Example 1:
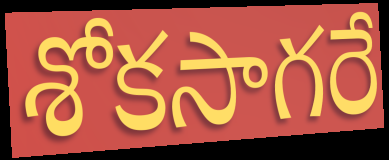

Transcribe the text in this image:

శోకసాగరే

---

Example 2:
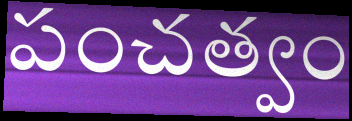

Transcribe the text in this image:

పంచత్వం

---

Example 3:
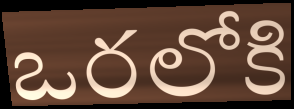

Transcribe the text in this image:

ఒరలోకి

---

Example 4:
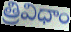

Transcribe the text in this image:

త్రివిధాం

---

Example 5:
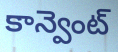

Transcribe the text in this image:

కాన్వెంట్